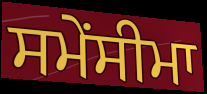
ਸਮੇਂਸੀਮਾ